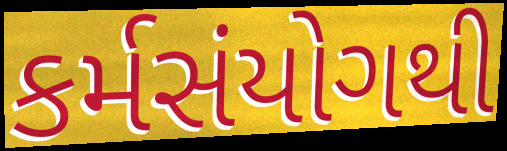
કર્મસંયોગથી